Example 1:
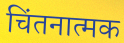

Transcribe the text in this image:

चिंतनात्मक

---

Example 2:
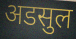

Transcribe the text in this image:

अडसुल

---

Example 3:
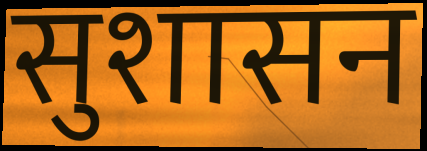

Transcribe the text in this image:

सुशासन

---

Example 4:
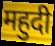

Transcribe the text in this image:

महुदी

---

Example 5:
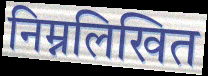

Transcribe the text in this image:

निम्नलिखित